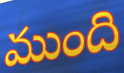
ముంది